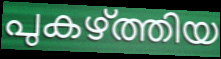
പുകഴ്ത്തിയ